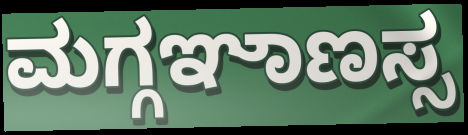
ಮಗ್ಗಞಾಣಸ್ಸ